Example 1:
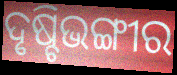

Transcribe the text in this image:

ଦୃଷ୍ଚିଭଙ୍ଗୀର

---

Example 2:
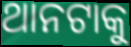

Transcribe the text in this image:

ଥାନଟାକୁ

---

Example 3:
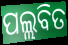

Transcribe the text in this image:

ପଲ୍ଲବିତ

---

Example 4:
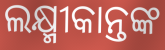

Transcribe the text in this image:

ଲକ୍ଷ୍ମୀକାନ୍ତଙ୍କ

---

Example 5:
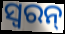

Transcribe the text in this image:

ସ୍ୱରନ୍